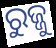
ରୁଜ୍ଜୁ